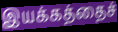
இயக்கத்தைச்